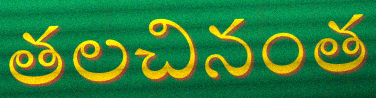
తలచినంత